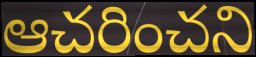
ఆచరించని